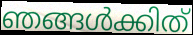
ഞങ്ങൾക്കിത്